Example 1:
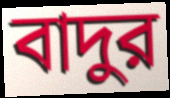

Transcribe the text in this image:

বাদুর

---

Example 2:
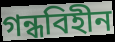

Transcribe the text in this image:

গন্ধবিহীন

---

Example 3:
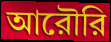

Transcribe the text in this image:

আরৌরি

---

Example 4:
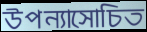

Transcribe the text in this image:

উপন্যাসোচিত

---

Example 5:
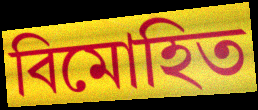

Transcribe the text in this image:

বিমোহিত